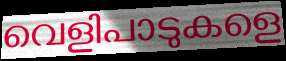
വെളിപാടുകളെ